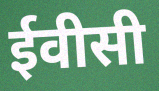
ईवीसी